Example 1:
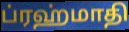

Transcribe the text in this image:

ப்ரஹ்மாதி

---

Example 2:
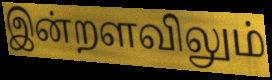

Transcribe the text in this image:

இன்றளவிலும்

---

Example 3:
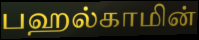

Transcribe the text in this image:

பஹல்காமின்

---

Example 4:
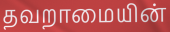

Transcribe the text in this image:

தவறாமையின்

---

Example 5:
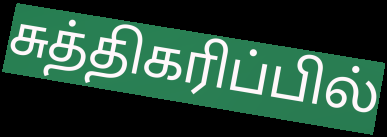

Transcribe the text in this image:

சுத்திகரிப்பில்